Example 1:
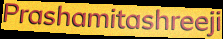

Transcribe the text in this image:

Prashamitashreeji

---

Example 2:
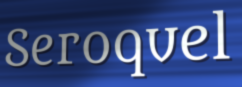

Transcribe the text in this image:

Seroquel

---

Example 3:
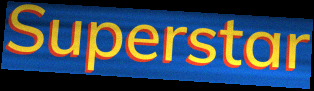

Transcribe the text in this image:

Superstar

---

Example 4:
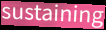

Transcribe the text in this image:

sustaining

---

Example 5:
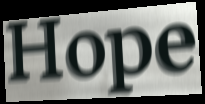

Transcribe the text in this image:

Hope